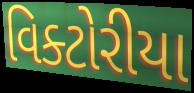
વિક્ટોરીયા